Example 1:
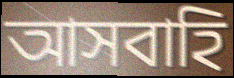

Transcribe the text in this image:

আসবাহি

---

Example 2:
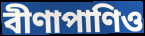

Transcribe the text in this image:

বীণাপাণিও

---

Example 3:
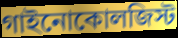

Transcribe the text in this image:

গাইনোকোলজিস্ট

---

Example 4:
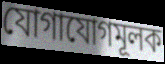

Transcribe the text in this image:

যোগাযোগমূলক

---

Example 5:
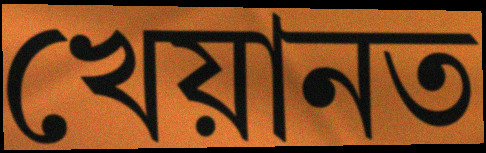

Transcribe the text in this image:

খেয়ানত